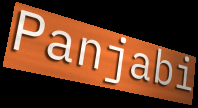
Panjabi